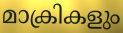
മാക്രികളും